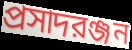
প্রসাদরঞ্জন